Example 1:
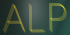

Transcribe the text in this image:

ALP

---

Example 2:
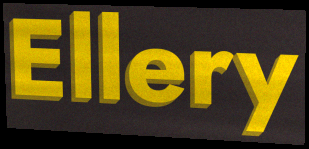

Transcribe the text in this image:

Ellery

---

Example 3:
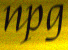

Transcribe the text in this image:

npg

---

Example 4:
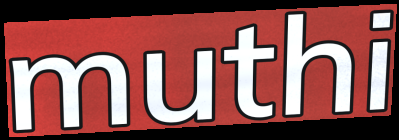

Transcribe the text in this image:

muthi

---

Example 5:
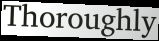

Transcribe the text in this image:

Thoroughly